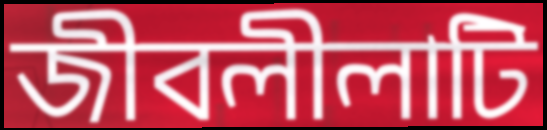
জীবলীলাটি